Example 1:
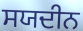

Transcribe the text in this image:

ਸਯਦੀਨ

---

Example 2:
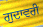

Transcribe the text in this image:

ਗੁਦਾਵਰੀ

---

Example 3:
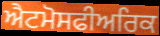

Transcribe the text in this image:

ਐਟਮੋਸਫੀਅਰਿਕ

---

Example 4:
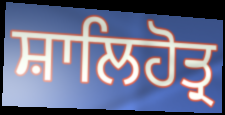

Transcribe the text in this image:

ਸ਼ਾਲਿਹੋਤ੍ਰ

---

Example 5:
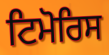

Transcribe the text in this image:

ਟਿਮੋਰਿਸ